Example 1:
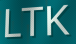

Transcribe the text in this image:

LTK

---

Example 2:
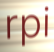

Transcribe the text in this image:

rpi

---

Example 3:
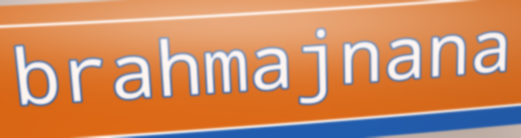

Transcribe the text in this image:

brahmajnana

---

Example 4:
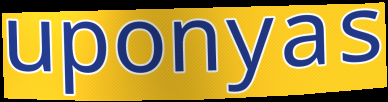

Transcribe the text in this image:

uponyas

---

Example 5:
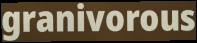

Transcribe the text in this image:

granivorous